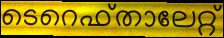
ടെറെഫ്താലേറ്റ്